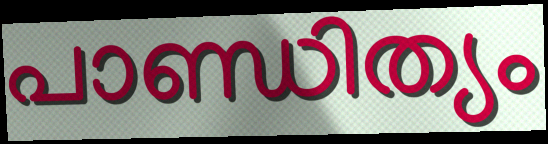
പാണ്ഡിത്യം